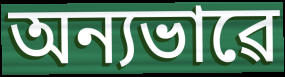
অন্যভাৱে